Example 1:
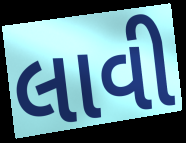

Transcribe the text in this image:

લાવી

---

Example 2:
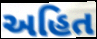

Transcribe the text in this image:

અહિત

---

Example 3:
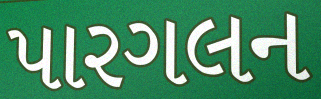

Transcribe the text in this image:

પારગલન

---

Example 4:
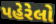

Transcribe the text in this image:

પહેરેલો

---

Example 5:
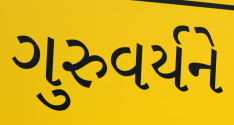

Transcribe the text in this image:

ગુરુવર્યને